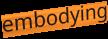
embodying